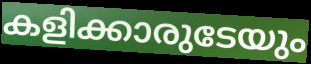
കളിക്കാരുടേയും